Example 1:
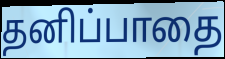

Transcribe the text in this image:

தனிப்பாதை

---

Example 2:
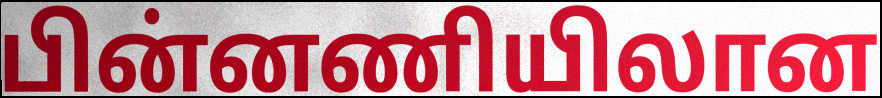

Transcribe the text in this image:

பின்னணியிலான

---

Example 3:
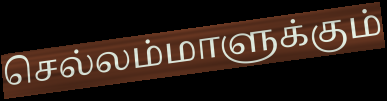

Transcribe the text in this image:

செல்லம்மாளுக்கும்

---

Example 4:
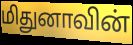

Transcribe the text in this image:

மிதுனாவின்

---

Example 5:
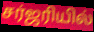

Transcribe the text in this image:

சர்ஜரியில்